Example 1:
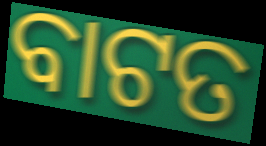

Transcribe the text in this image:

ବାଟତ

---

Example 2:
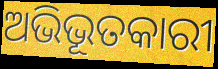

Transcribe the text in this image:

ଅଭିଭୂତକାରୀ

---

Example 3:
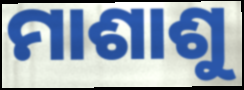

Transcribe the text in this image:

ମାଶାଶୁ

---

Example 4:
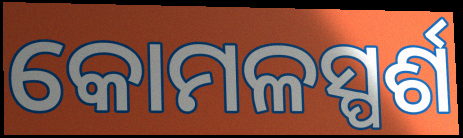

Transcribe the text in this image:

କୋମଳସ୍ପର୍ଶ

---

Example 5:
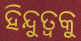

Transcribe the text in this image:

ହିନ୍ଦୁତ୍ୱକୁ